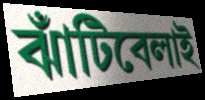
ঝাঁটিবেলাই